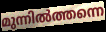
മുന്നിൽത്തന്നെ